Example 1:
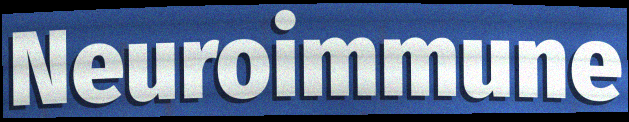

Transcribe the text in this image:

Neuroimmune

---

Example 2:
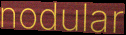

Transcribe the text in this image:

nodular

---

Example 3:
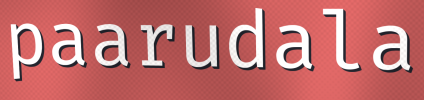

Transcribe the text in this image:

paarudala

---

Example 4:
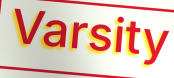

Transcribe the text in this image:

Varsity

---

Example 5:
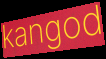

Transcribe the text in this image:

kangod